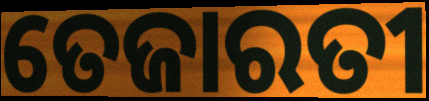
ତେଜାରତୀ